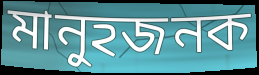
মানুহজনক